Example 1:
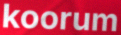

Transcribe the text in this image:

koorum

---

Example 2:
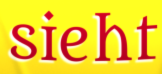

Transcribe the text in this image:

sieht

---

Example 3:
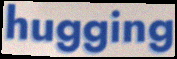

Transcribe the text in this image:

hugging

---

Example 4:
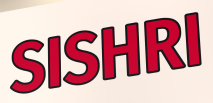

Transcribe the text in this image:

SISHRI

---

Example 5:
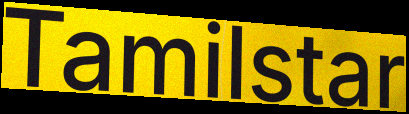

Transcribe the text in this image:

Tamilstar